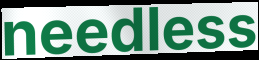
needless